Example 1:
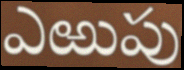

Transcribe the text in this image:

ఎఱుపు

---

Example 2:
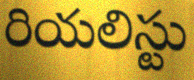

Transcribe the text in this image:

రియలిస్టు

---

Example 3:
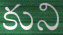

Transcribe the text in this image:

కుని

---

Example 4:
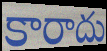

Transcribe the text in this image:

కారాదు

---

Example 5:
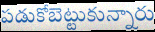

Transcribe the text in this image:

పడుకోబెట్టుకున్నారు